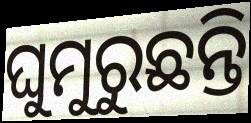
ଘୁମୁରୁଛନ୍ତି